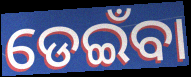
ଡେଇଁବା